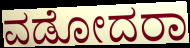
ವಡೋದರಾ